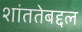
शांततेबद्दल